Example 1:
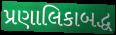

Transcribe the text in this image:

પ્રણાલિકાબદ્ધ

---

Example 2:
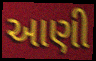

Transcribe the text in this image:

આણી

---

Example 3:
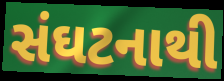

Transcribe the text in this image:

સંઘટનાથી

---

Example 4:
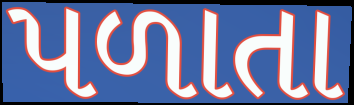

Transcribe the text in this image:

પળાતા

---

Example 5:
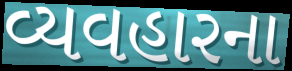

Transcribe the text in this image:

વ્યવહારના